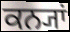
ਕਨ੍ਯਾਂ